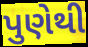
પુણેથી